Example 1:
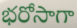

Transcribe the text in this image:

భరోసాగా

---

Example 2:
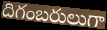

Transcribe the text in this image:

దిగంబరులుగా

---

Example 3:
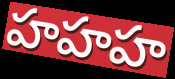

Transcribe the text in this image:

హహహ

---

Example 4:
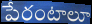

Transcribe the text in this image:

పేరంటాలూ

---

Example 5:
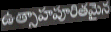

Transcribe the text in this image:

ఉత్సాహపూరితమైన